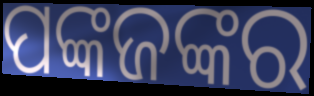
ପଙ୍କଜଙ୍କର